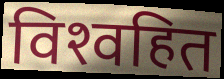
विश्वहित